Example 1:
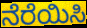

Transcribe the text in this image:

ನೆರೆಯಿಸಿ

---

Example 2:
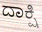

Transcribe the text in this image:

ದಾಕ್ಷಿ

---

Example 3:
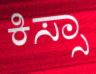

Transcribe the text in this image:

ಕಿಸ್ಸಾ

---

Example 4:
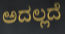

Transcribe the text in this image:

ಅದಲ್ಲದೆ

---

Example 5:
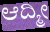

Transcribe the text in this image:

ಆದ್ಮೀ